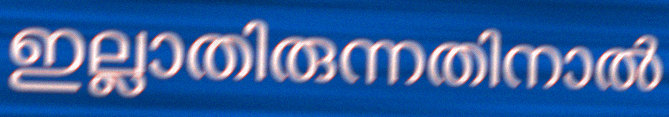
ഇല്ലാതിരുന്നതിനാൽ